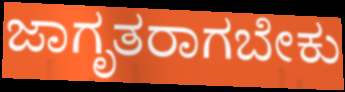
ಜಾಗೃತರಾಗಬೇಕು